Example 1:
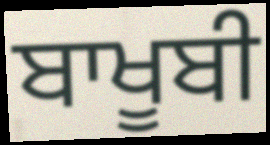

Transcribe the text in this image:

ਬਾਖੂਬੀ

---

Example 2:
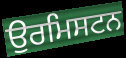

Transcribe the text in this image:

ਉਰਮਿਸਟਨ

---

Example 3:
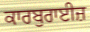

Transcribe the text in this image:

ਕਾਰਬੁਰਾਈਜ਼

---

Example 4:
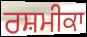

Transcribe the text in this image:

ਰਸ਼ਮੀਕਾ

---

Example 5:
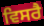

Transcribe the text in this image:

ਵਿਸਰੈ